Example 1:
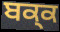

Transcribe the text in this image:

ਬਕ੍ਕ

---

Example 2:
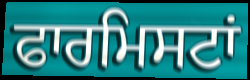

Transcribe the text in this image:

ਫਾਰਮਿਸਟਾਂ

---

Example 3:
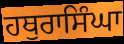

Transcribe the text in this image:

ਹਥੁਰਾਸਿੰਘਾ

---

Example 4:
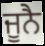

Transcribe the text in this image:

ਜੂਨੈ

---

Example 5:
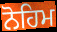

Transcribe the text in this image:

ਨੋਹਿਮ